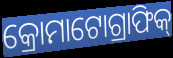
କ୍ରୋମାଟୋଗ୍ରାଫିକ୍